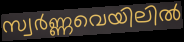
സ്വർണ്ണവെയിലിൽ